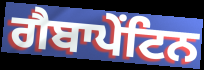
ਗੈਬਾਪੇਂਟਿਨ